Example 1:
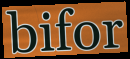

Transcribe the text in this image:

bifor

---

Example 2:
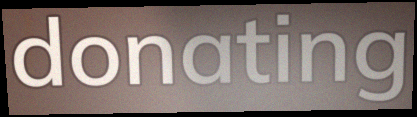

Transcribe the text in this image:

donating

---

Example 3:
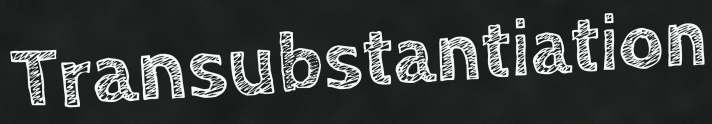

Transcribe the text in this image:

Transubstantiation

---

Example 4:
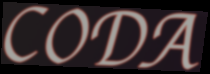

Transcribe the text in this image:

CODA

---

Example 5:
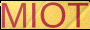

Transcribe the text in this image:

MIOT